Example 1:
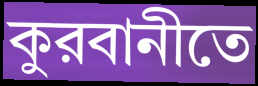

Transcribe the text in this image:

কুরবানীতে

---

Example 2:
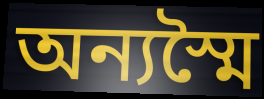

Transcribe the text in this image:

অন্যস্মৈ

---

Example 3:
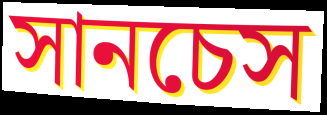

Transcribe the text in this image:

সানচেস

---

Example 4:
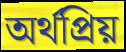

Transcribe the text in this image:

অর্থপ্রিয়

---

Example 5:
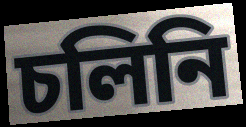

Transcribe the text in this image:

চলিনি